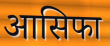
आसिफा